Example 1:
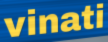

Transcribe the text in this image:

vinati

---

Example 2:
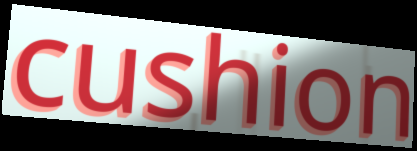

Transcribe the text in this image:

cushion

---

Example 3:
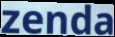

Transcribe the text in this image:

zenda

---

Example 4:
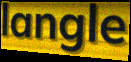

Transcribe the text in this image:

langle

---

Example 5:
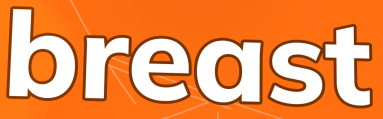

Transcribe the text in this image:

breast